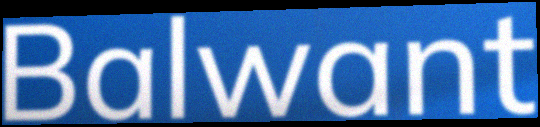
Balwant